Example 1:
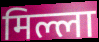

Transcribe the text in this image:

मिल्ला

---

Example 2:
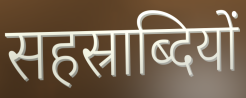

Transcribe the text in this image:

सहस्राब्दियों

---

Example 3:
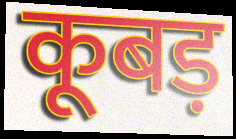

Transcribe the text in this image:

कूबड़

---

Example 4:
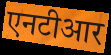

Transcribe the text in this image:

एनटीआर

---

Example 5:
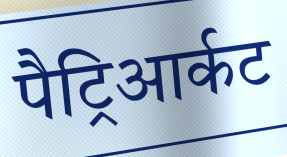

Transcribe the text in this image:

पैट्रिआर्कट